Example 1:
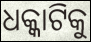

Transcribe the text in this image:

ଧକ୍କାଟିକୁ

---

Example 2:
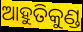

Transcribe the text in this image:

ଆହୁତିକୁଣ୍ଡ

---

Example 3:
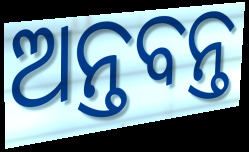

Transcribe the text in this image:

ଅନ୍ତବନ୍ତ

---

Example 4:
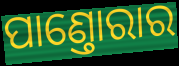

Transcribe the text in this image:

ପାଣ୍ତୋରାର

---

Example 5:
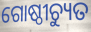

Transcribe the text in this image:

ଗୋଷ୍ଠୀଚ୍ୟୁତ